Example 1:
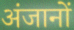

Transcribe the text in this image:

अंजानों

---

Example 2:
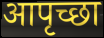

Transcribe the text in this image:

आपृच्छा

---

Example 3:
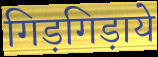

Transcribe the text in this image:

गिड़गिड़ाये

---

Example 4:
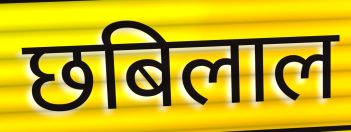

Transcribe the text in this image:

छबिलाल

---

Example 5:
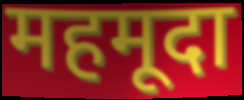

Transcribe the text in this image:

महमूदा